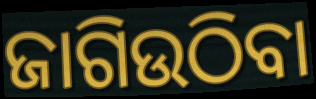
ଜାଗିଉଠିବା